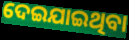
ଦେଇଯାଇଥିବା